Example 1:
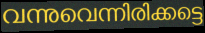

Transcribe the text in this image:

വന്നുവെന്നിരിക്കട്ടെ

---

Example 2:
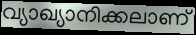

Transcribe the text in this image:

വ്യാഖ്യാനിക്കലാണ്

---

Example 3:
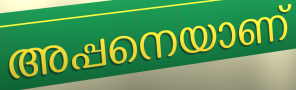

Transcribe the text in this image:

അപ്പനെയാണ്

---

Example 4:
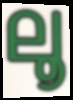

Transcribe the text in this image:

ലൂ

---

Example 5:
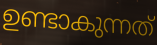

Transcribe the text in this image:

ഉണ്ടാകുന്നത്